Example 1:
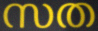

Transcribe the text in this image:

സത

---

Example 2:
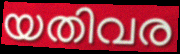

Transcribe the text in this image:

യതിവര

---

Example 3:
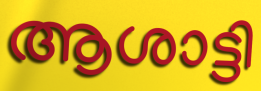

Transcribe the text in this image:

ആശാട്ടി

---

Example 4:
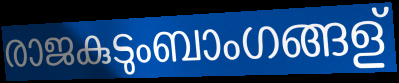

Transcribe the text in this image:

രാജകുടുംബാംഗങ്ങള്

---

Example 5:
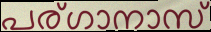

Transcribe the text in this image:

പര്ഗാനാസ്